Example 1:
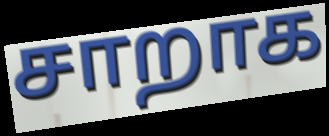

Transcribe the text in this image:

சாறாக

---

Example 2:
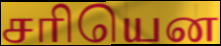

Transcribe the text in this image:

சரியென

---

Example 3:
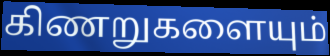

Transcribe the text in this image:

கிணறுகளையும்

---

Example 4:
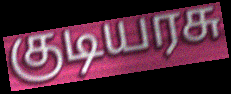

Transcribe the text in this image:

குடியரசு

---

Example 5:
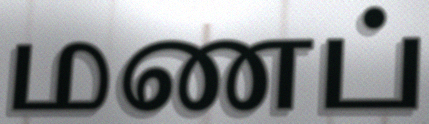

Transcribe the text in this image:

மணப்